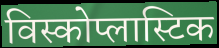
विस्कोप्लास्टिक